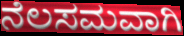
ನೆಲಸಮವಾಗಿ